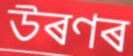
উৰণৰ